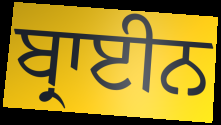
ਬ੍ਰਾਈਨ